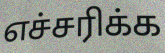
எச்சரிக்க